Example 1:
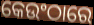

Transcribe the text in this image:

କେଉଂଠାରେ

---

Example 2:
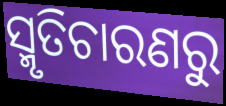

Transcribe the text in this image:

ସ୍ମୃତିଚାରଣରୁ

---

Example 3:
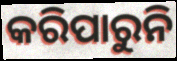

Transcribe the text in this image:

କରିପାରୁନି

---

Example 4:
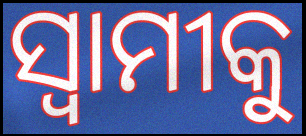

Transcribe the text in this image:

ସ୍ବାମୀକୁ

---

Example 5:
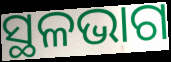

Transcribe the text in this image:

ସ୍ଥଳଭାଗ